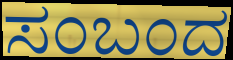
ಸಂಬಂದ